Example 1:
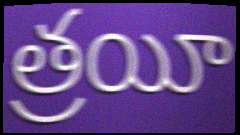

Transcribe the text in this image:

త్రయీ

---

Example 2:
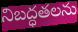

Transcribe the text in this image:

నిబద్ధతలను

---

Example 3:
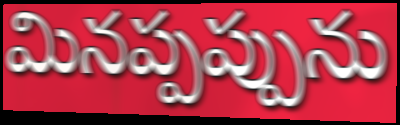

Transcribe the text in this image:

మినప్పప్పును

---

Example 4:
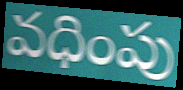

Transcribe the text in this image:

వధింపు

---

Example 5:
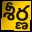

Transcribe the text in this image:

శీర్ణ